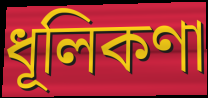
ধূলিকণা